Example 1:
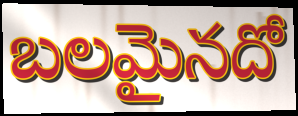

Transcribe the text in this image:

బలమైనదో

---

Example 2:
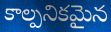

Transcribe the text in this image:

కాల్పనికమైన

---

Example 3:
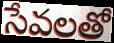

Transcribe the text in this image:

సేవలతో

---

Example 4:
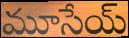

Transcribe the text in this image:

మూసేయ్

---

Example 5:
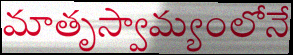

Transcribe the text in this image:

మాతృస్వామ్యంలోనే